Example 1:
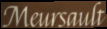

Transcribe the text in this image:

Meursault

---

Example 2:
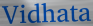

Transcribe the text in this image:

Vidhata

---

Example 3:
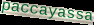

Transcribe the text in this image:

paccayassa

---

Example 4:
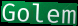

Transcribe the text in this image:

Golem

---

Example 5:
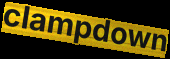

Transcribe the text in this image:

clampdown